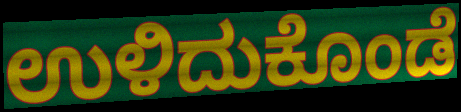
ಉಳಿದುಕೊಂಡೆ